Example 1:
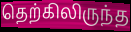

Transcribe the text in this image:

தெற்கிலிருந்த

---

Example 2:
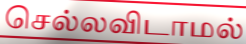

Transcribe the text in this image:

செல்லவிடாமல்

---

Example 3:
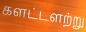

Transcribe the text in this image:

களட்டளற்று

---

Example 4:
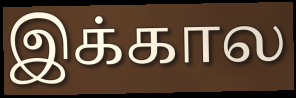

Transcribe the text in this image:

இக்கால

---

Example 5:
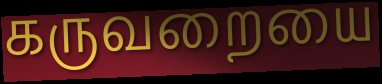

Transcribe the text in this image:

கருவறையை